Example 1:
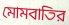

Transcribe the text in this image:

মোমবাতির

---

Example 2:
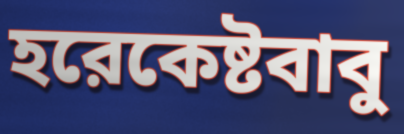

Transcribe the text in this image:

হরেকেষ্টবাবু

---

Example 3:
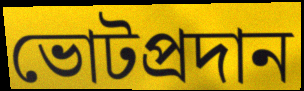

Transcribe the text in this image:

ভোটপ্রদান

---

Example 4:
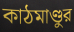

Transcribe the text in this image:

কাঠমাণ্ডুর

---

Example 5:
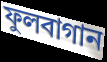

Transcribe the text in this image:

ফুলবাগান